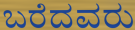
ಬರೆದವರು